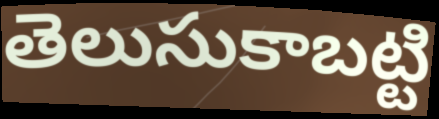
తెలుసుకాబట్టి